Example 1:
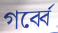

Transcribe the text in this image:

গর্ব্বে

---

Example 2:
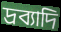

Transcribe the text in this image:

দ্রব্যাদি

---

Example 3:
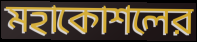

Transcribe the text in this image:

মহাকোশলের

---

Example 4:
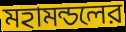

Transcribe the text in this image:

মহামন্ডলের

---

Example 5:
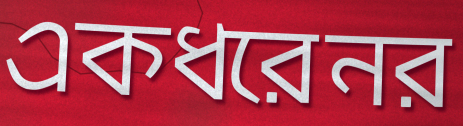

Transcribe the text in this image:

একধরেনর